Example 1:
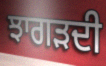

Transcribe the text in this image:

ਝਾਗੜਦੀ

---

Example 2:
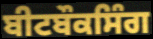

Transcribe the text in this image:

ਬੀਟਬੌਕਸਿੰਗ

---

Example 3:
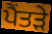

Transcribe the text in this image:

ਪੈਂਤੜੇ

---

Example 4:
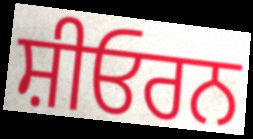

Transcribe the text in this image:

ਸ਼ੀਓਰਨ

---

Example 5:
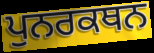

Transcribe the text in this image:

ਪੁਨਰਕਥਨ